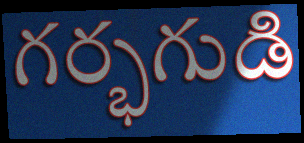
గర్భగుడి